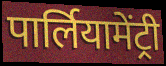
पार्लियामेंट्री